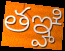
తఞ్హి